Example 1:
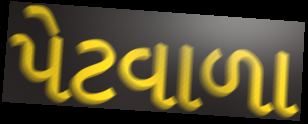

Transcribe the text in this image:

પેટવાળા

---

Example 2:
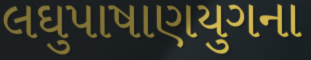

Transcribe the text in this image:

લઘુપાષાણયુગના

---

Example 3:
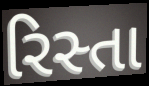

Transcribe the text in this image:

રિસ્તા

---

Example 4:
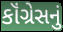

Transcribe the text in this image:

કૉંગ્રેસનું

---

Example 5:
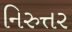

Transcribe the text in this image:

નિરુત્તર